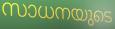
സാധനയുടെ